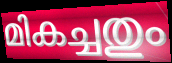
മികച്ചതും